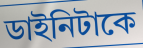
ডাইনিটাকে